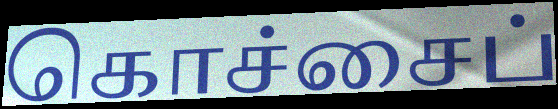
கொச்சைப்